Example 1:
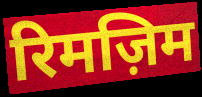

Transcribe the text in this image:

रिमज़िम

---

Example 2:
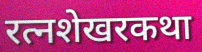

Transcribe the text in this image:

रत्नशेखरकथा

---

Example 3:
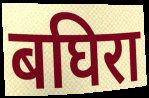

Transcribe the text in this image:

बघिरा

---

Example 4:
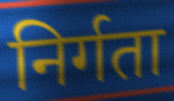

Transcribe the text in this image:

निर्गता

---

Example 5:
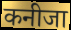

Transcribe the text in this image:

कनीजा